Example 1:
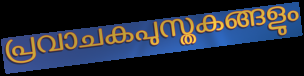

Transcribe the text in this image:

പ്രവാചകപുസ്തകങ്ങളും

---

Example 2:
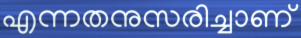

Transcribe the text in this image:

എന്നതനുസരിച്ചാണ്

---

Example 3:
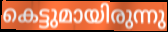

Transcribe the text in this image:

കെട്ടുമായിരുന്നു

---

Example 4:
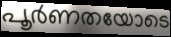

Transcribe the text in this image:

പൂർണതയോടെ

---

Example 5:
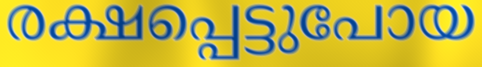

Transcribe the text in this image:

രക്ഷപ്പെട്ടുപോയ